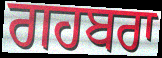
ਗਹਬਰਾ